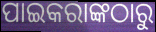
ପାଇକରାଙ୍କଠାରୁ